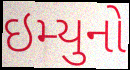
ઇમ્યુનો